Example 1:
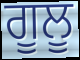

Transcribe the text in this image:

ਗੂਲੂ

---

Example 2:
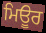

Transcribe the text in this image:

ਮਿਊਰ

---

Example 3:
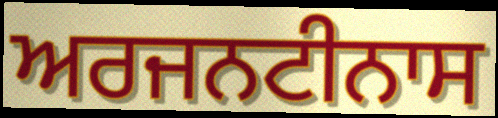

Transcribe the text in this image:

ਅਰਜਨਟੀਨਾਸ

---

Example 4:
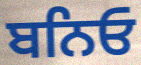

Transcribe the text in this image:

ਬਨਿਓ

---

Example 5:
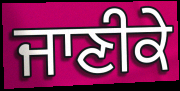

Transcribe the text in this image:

ਜਾਣੀਕੇ